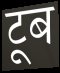
टूब